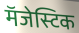
मॅजेस्टिक